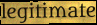
legitimate